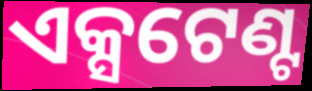
ଏକ୍ସଟେଣ୍ଟ